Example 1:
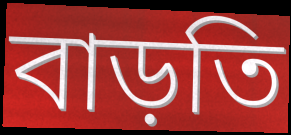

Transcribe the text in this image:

বাড়তি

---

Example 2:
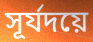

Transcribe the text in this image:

সূর্যদয়ে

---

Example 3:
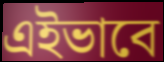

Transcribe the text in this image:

এইভাবে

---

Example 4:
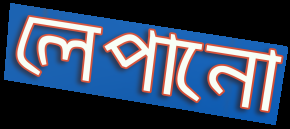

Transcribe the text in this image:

লেপানো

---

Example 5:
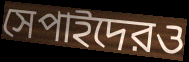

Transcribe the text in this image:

সেপাইদেরও